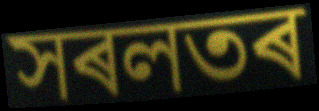
সৰলতৰ